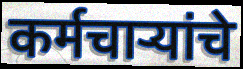
कर्मचाऱ्यांचे